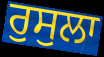
ਰੁਸੁਲਾ